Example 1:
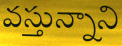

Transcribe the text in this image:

వస్తున్నాని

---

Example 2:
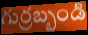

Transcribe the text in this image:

గుర్రబ్బండి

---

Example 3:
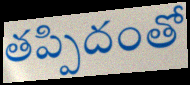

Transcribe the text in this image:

తప్పిదంతో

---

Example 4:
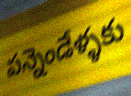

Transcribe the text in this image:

పన్నెండేళ్ళకు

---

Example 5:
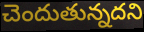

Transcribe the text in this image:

చెందుతున్నదని